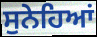
ਸੁਨੇਹਿਆਂ